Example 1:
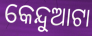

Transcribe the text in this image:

କେନ୍ଦୁଆଟା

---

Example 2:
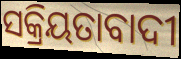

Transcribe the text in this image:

ସକ୍ରିୟତାବାଦୀ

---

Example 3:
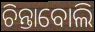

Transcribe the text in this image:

ଚିନ୍ତାବୋଲି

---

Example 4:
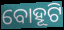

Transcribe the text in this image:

ବୋହୂଟି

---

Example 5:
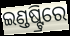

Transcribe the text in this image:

ଇଣ୍ଡଷ୍ଟ୍ରିରେ